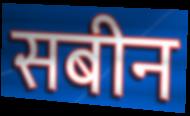
सबीन